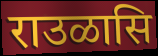
राउळासि